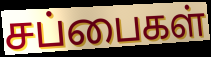
சப்பைகள்